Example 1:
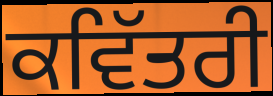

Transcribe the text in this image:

ਕਵਿੱਤਰੀ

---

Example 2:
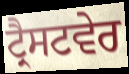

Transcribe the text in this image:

ਟ੍ਰੈਸਟਵੇਰ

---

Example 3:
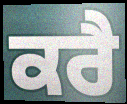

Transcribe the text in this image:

ਕਰੈ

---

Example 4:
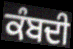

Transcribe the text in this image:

ਕੰਬਦੀ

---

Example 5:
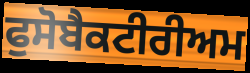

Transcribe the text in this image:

ਫੁਸੋਬੈਕਟੀਰੀਅਮ